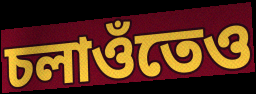
চলাওঁতেও